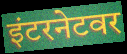
इंटरनेटवर